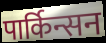
पार्किन्सन